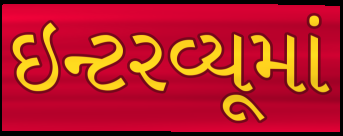
ઇન્ટરવ્યૂમાં